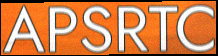
APSRTC